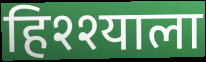
हिश्श्याला